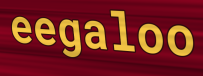
eegaloo